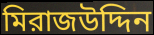
মিরাজউদ্দিন